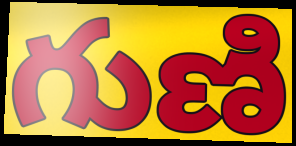
గుణి